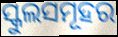
ସ୍କୁଲସମୂହର